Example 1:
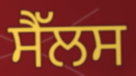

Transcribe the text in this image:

ਸੈੱਲਸ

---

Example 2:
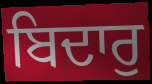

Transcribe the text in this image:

ਬਿਦਾਰੁ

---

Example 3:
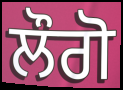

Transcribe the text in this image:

ਲੌਗੋ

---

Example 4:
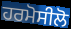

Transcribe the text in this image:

ਹਰਮੋਸੀਲੋ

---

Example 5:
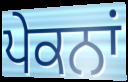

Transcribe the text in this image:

ਪੇਕਨਾਂ